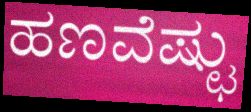
ಹಣವೆಷ್ಟು